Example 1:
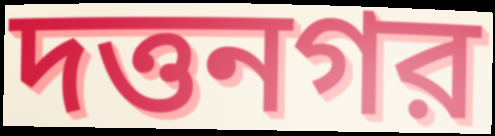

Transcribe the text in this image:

দত্তনগর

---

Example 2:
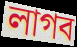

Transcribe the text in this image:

লাগব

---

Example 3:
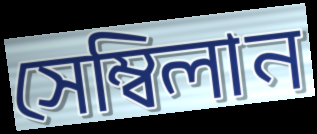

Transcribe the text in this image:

সেম্বিলান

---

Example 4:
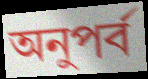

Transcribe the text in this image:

অনুপর্ব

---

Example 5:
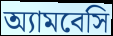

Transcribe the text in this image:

অ্যামবেসি